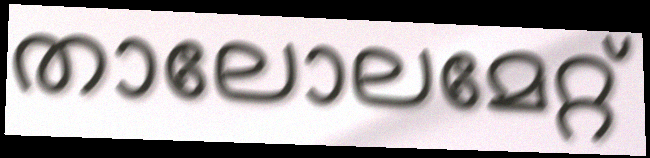
താലോലമേറ്റ്